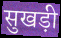
सुखड़ी